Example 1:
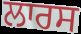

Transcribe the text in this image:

ਲਾਰਸ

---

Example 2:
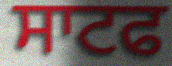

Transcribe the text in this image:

ਸਾਟਫ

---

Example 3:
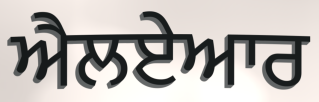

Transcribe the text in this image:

ਐਲਏਆਰ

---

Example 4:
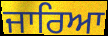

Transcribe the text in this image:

ਜਾਰਿਆ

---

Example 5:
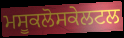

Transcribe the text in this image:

ਮਸੂਕਲੋਸਕੇਲਟਲ